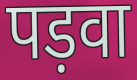
पड़वा